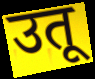
उतू